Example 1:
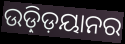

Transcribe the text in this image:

ଉଡ଼୍ଡ଼ିୟାନର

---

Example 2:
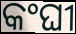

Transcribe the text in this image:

କଂଘୀ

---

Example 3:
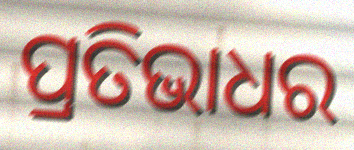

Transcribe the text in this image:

ପ୍ରତିଭାଧର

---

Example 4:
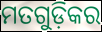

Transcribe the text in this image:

ମତଗୁଡ଼ିକର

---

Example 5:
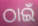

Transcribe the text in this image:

ଠାଇଁ